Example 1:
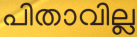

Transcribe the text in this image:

പിതാവില്ല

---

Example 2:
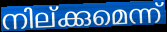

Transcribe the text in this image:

നില്ക്കുമെന്ന്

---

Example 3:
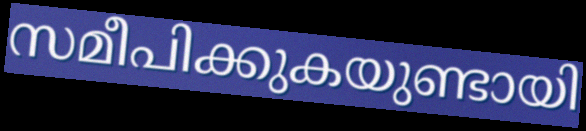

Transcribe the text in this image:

സമീപിക്കുകയുണ്ടായി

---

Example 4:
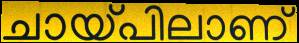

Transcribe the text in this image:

ചായ്പിലാണ്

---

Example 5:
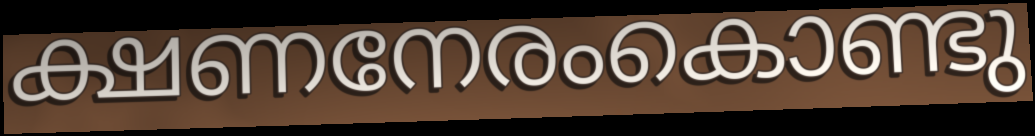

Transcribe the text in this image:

ക്ഷണനേരംകൊണ്ടു